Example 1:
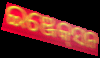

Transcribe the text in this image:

ଇଞ୍ଜେକ୍‌ସନ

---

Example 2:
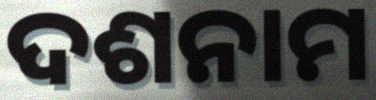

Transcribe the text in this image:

ଦଶନାମ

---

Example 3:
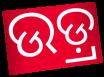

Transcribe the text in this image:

ଉଡ଼୍ର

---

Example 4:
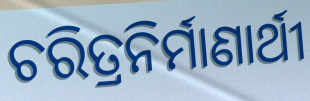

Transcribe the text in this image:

ଚରିତ୍ରନିର୍ମାଣାର୍ଥୀ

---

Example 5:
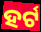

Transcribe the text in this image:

ହର୍ଟ